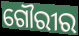
ଗୌରୀର